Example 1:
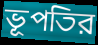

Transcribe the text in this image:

ভূপতির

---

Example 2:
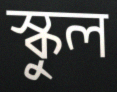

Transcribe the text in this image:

স্কুল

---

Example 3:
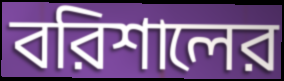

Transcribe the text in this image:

বরিশালের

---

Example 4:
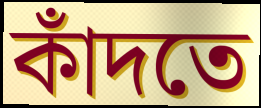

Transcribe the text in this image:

কাঁদতে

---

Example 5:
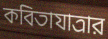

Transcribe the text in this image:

কবিতাযাত্রার